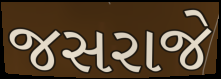
જસરાજે